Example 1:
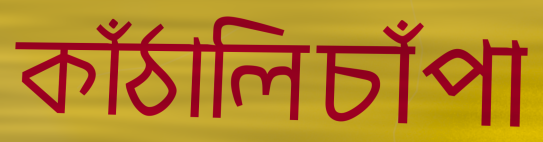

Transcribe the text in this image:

কাঁঠালিচাঁপা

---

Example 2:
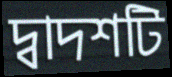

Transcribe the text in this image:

দ্বাদশটি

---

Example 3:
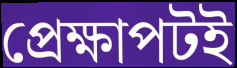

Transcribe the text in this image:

প্রেক্ষাপটই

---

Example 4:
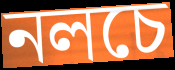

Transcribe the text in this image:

নলচে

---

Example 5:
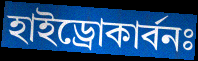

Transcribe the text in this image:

হাইড্রোকার্বনঃ